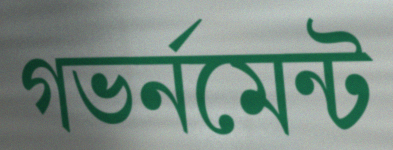
গভর্নমেন্ট